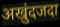
अखुंदजदा